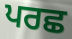
ਪਰਛ